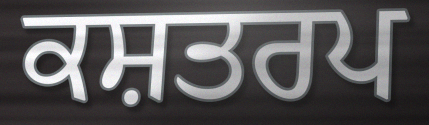
ਕਸ਼ਤਰਪ